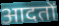
आदतों